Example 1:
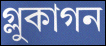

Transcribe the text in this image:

গ্লুকাগন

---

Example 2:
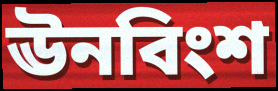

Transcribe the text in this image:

ঊনবিংশ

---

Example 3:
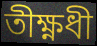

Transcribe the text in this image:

তীক্ষ্ণধী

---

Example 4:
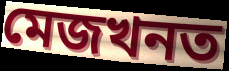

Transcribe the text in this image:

মেজখনত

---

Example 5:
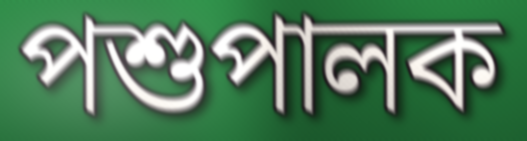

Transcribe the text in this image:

পশুপালক